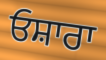
ਓਸ਼ਾਰਾ